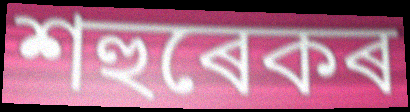
শহুৰেকৰ